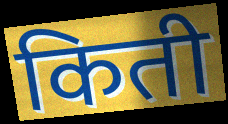
किती